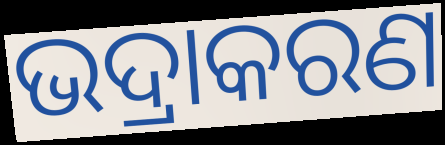
ଭଦ୍ରାକରଣ